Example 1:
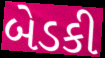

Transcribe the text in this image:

બેડકી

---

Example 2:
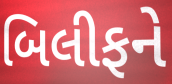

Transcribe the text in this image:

બિલીફને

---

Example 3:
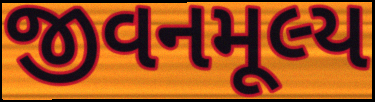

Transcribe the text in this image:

જીવનમૂલ્ય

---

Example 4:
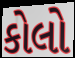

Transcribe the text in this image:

કોલો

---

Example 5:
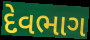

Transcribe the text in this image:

દેવભાગ